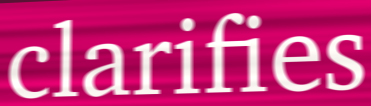
clarifies